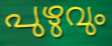
പുഴുവും